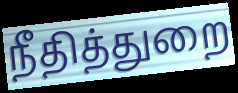
நீதித்துறை